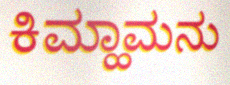
ಕಿಮ್ಹಾಮನು